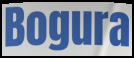
Bogura